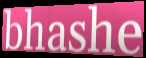
bhashe